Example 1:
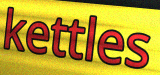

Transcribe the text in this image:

kettles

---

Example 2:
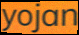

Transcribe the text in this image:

yojan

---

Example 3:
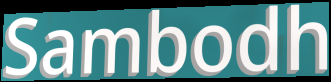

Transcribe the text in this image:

Sambodh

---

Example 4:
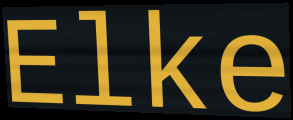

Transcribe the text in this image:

Elke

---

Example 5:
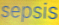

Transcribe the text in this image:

sepsis